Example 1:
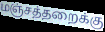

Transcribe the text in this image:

மஞ்சத்தறைக்கு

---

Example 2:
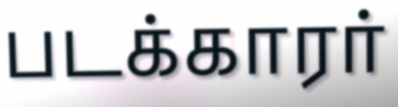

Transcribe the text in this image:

படக்காரர்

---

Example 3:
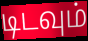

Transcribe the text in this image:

டிடவும்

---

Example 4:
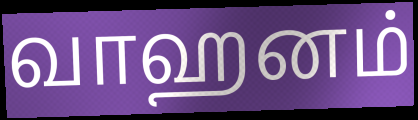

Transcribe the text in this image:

வாஹனம்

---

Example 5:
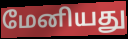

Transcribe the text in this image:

மேனியது